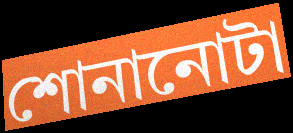
শোনানোটা